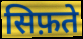
सिफ़ते